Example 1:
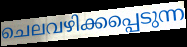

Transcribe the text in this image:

ചെലവഴിക്കപ്പെടുന്ന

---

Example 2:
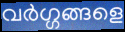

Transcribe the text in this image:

വർഗ്ഗങ്ങളെ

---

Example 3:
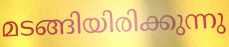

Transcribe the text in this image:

മടങ്ങിയിരിക്കുന്നു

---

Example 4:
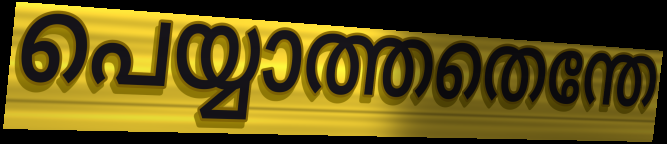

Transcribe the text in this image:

പെയ്യാത്തതെന്തേ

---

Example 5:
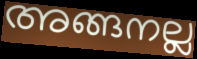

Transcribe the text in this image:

അങ്ങനല്ല